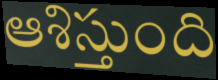
ఆశిస్తుంది